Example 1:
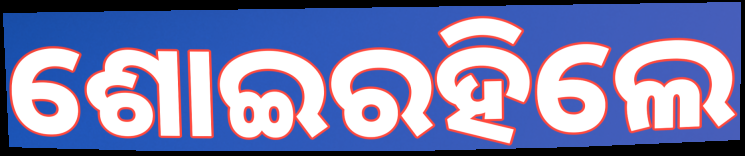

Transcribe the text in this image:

ଶୋଇରହିଲେ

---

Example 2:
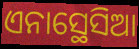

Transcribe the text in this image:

ଏନାସ୍ଥେସିଆ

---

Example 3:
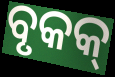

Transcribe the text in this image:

ବୃକକ୍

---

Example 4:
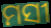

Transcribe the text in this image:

ମସୀ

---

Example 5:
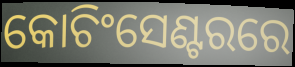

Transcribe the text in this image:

କୋଚିଂସେଣ୍ଟରରେ